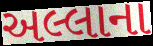
અલ્લાના